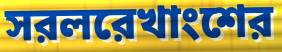
সরলরেখাংশের